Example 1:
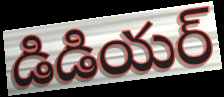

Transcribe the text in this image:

డిడియర్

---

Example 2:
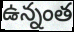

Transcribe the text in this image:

ఉన్నంత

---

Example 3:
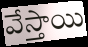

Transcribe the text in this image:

వేస్తాయి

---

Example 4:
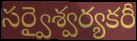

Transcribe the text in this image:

సర్వైశ్వర్యకరీ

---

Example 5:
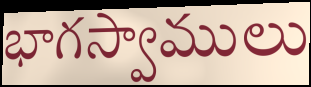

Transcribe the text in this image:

భాగస్వాములు